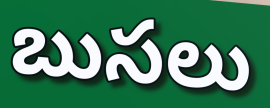
బుసలు